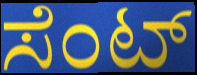
ಸೆಂಟ್